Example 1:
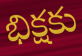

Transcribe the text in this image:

భిక్షకు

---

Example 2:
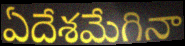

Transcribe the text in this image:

ఏదేశమేగినా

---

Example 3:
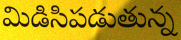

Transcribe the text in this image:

మిడిసిపడుతున్న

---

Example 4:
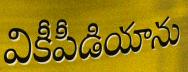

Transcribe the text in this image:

వికీపీడియాను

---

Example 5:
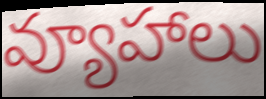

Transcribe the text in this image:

వ్యూహాలు